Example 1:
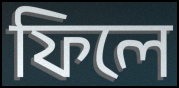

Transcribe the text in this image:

ফিলে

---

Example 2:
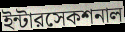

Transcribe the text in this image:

ইন্টারসেকশনাল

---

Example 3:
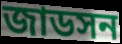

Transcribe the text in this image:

জাডসন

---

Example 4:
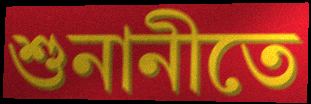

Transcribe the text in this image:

শুনানীতে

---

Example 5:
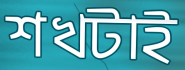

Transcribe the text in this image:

শখটাই